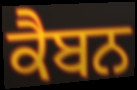
ਕੈਬਨ